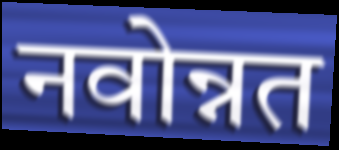
नवोन्नत